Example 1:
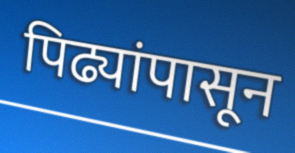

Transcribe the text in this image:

पिढ्यांपासून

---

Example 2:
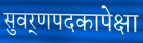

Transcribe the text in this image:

सुवर्णपदकापेक्षा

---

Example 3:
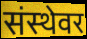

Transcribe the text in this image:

संस्थेवर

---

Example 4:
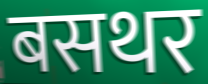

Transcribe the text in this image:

बसथर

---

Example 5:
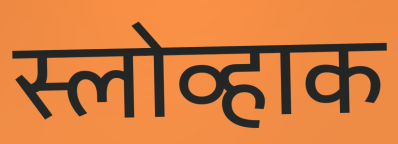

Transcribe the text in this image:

स्लोव्हाक